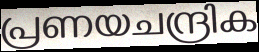
പ്രണയചന്ദ്രിക